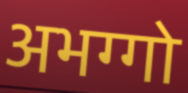
अभग्गो